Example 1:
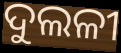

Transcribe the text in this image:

ଦୁଲଳୀ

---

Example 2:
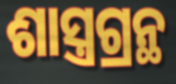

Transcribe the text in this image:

ଶାସ୍ତ୍ରଗ୍ରନ୍ଥ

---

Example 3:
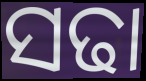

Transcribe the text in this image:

ସଢା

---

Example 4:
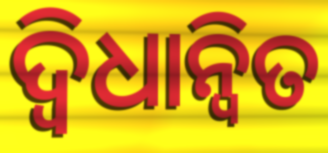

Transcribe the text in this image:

ଦ୍ଵିଧାନ୍ୱିତ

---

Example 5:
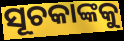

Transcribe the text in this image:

ସୂଚକାଙ୍କକୁ